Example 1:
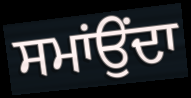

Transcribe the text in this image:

ਸਮਾਂਉਂਦਾ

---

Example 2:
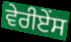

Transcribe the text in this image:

ਵੇਰੀਏਂਸ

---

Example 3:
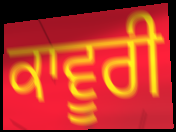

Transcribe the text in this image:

ਕਾਵੂਰੀ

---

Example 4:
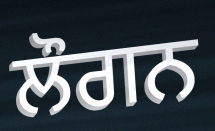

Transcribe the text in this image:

ਲੌਗਨ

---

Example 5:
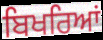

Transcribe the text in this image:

ਬਿਖਰਿਆਂ